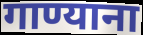
गाण्याना